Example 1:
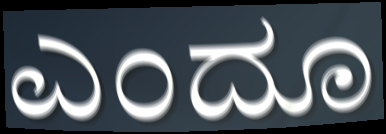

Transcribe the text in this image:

ಎಂದೂ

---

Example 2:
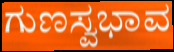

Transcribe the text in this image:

ಗುಣಸ್ವಭಾವ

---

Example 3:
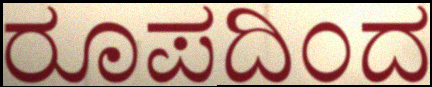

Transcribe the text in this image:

ರೂಪದಿಂದ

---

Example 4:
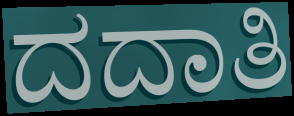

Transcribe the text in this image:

ದದಾತಿ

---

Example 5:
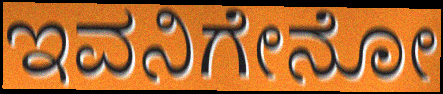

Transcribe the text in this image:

ಇವನಿಗೇನೋ